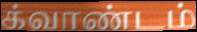
க்வாண்டம்